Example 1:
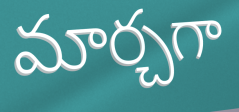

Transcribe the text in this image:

మార్చగా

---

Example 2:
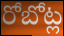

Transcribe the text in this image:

రోబోట్ల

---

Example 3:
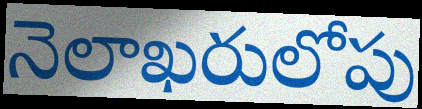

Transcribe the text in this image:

నెలాఖరులోపు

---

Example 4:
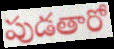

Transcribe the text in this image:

పుడతారో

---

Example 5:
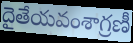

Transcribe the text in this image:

దైతేయవంశాగ్రణీ